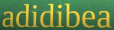
adidibea